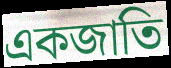
একজাতি